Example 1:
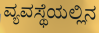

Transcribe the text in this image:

ವ್ಯವಸ್ಥೆಯಲ್ಲಿನ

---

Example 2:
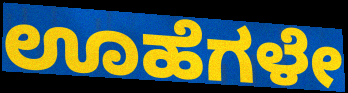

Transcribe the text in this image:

ಊಹೆಗಳೇ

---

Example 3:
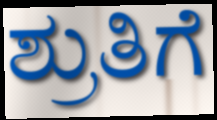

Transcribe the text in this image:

ಶ್ರುತಿಗೆ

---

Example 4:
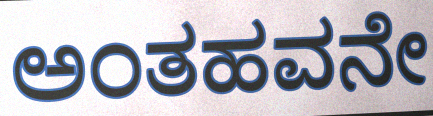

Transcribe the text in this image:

ಅಂತಹವನೇ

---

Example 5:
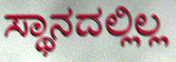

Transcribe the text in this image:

ಸ್ಥಾನದಲ್ಲಿಲ್ಲ